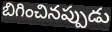
బిగించినప్పుడు